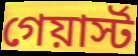
গেয়ার্স্ট